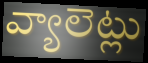
వ్యాలెట్లు